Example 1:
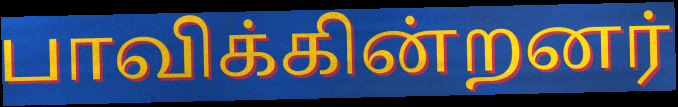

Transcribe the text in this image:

பாவிக்கின்றனர்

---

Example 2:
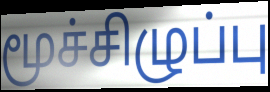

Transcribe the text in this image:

மூச்சிழுப்பு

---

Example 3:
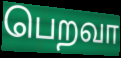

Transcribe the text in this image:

பெறவா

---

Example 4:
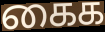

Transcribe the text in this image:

கைக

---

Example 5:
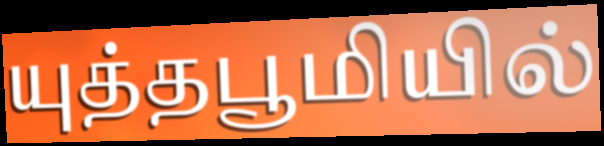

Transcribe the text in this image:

யுத்தபூமியில்